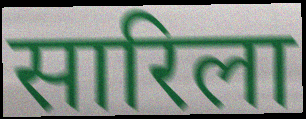
सारिला